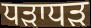
ਧੜਾਧੜ